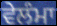
ਵੇਲੰਮਾ